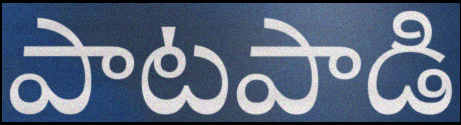
పాటపాడి